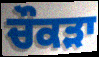
ਚੌਕੜਾ